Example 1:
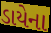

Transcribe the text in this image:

ડાયેના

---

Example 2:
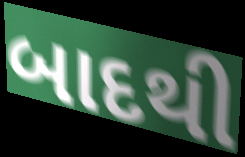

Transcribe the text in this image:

બાદથી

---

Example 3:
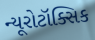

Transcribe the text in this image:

ન્યૂરોટૉક્સિક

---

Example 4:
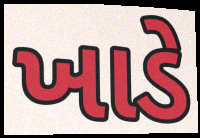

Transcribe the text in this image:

ખાડે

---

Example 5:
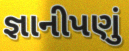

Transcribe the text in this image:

જ્ઞાનીપણું